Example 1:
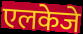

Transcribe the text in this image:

एलकेजे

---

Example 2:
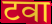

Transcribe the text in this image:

टवा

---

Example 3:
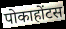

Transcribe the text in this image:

पोकाहोंटस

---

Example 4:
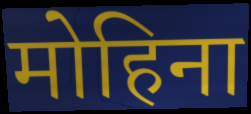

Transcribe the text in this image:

मोहिना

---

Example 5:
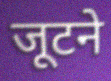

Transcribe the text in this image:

जूटने